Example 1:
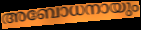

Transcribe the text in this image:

അബോധനായും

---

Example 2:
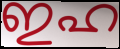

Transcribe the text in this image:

ഇഹ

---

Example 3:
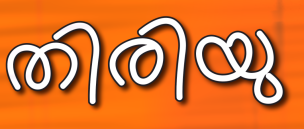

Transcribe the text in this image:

തിരിയു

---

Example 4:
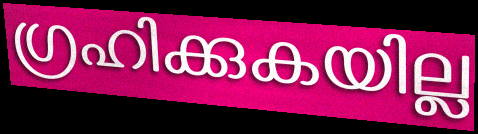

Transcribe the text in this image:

ഗ്രഹിക്കുകയില്ല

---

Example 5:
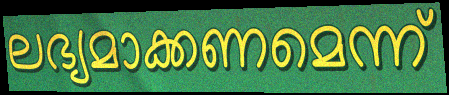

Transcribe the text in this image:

ലഭ്യമാക്കണമെന്ന്